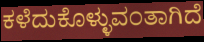
ಕಳೆದುಕೊಳ್ಳುವಂತಾಗಿದೆ